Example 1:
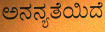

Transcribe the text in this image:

ಅನನ್ಯತೆಯಿದೆ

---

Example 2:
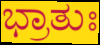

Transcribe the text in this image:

ಭ್ರಾತುಃ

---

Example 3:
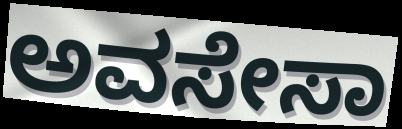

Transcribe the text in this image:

ಅವಸೇಸಾ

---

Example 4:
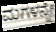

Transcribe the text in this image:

ಮಗಳನ್ನೇ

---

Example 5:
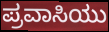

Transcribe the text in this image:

ಪ್ರವಾಸಿಯು